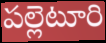
పల్లెటూరి